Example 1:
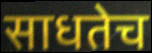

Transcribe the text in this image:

साधतेच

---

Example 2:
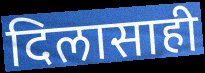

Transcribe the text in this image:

दिलासाही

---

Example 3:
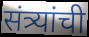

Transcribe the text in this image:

संत्र्यांची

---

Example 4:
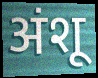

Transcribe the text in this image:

अंशू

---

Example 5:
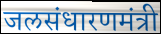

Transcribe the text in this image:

जलसंधारणमंत्री